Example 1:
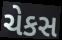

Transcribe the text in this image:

ચેકસ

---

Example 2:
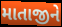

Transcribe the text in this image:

માતાજીને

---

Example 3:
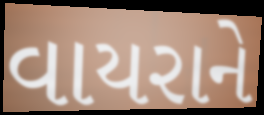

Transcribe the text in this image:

વાયરાને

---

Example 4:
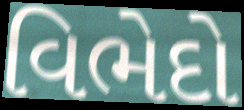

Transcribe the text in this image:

વિભેદો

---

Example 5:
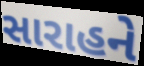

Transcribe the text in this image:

સારાહને